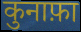
कुनाफ़ा